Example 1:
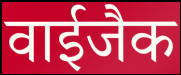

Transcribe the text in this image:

वाईजैक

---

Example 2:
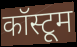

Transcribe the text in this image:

कॉस्टूम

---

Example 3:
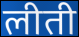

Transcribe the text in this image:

लीती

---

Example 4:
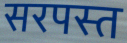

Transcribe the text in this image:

सरपस्त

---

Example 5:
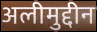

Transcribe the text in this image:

अलीमुद्दीन